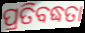
ପ୍ରତିବଦ୍ଧତା